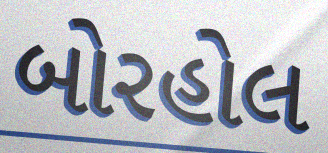
બોરહોલ